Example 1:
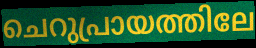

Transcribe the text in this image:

ചെറുപ്രായത്തിലേ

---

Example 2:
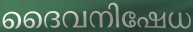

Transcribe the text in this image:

ദൈവനിഷേധ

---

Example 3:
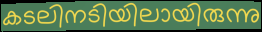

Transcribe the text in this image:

കടലിനടിയിലായിരുന്നു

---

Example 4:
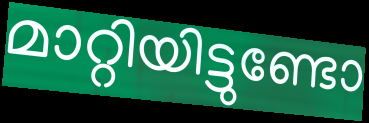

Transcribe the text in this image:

മാറ്റിയിട്ടുണ്ടോ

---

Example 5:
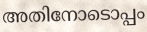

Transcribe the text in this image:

അതിനോടൊപ്പം